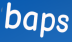
baps